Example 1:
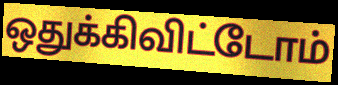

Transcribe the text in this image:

ஒதுக்கிவிட்டோம்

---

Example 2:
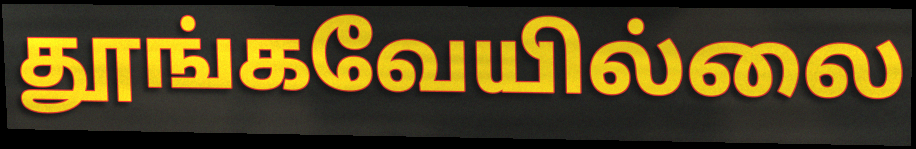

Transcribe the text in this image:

தூங்கவேயில்லை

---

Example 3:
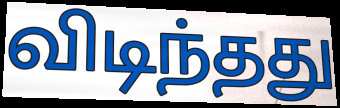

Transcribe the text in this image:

விடிந்தது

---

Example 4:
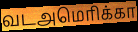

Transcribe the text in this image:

வடஅமெரிக்கா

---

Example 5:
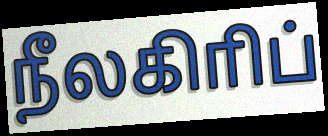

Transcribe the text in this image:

நீலகிரிப்